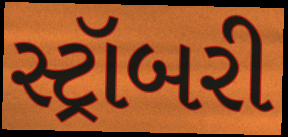
સ્ટ્રૉબરી